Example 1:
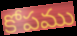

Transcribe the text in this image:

కోపము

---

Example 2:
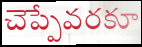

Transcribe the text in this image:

చెప్పేవరకూ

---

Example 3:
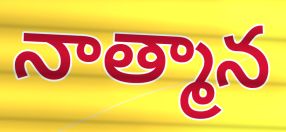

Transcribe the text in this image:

నాత్మాన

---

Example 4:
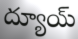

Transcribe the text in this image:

ద్యూయ్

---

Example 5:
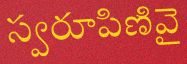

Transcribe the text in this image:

స్వరూపిణివై